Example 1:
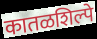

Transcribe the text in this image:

कातळशिल्पे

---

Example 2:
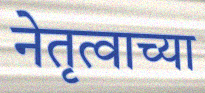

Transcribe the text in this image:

नेतृत्वाच्या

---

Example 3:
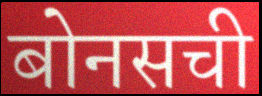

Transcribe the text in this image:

बोनसची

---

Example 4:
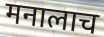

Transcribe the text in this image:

मनालाच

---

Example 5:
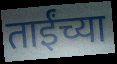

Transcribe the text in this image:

ताईंच्या